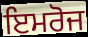
ਇਮਰੋਜ